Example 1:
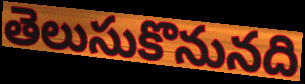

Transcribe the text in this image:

తెలుసుకొనునది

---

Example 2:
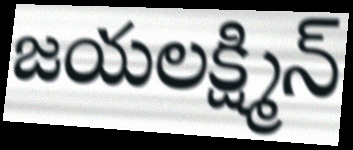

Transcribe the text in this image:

జయలక్ష్మిన్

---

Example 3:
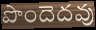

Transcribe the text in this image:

పొందెదవు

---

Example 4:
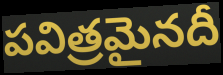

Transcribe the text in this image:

పవిత్రమైనదీ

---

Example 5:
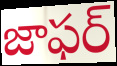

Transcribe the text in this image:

జాఫర్